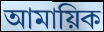
আমায়িক